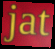
jat